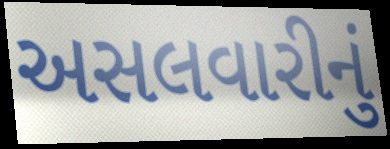
અસલવારીનું